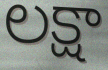
లక్షా